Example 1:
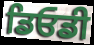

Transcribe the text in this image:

ਡਿਓਡੀ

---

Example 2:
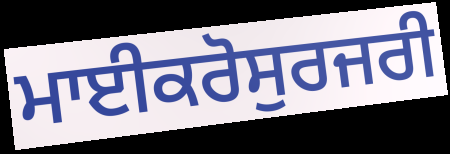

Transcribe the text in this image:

ਮਾਈਕਰੋਸੁਰਜਰੀ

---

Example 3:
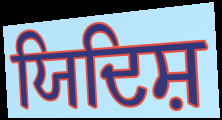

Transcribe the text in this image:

ਯਿਦਿਸ਼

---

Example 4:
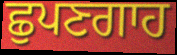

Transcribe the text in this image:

ਛੁਪਣਗਾਹ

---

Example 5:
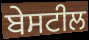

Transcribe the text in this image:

ਬੇਸਟੀਲ